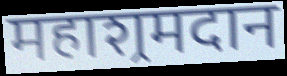
महाश्रमदान